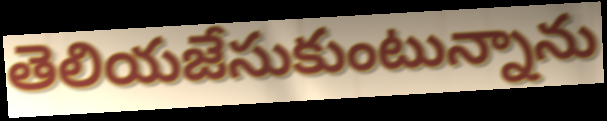
తెలియజేసుకుంటున్నాను